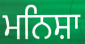
ਮਨਿਸ਼ਾ